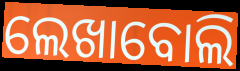
ଲେଖାବୋଲି